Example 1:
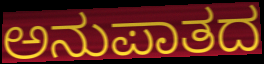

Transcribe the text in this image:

ಅನುಪಾತದ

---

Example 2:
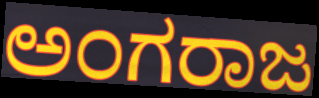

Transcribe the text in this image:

ಅಂಗರಾಜ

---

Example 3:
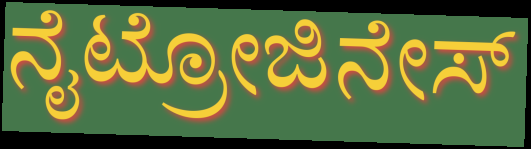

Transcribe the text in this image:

ನೈಟ್ರೋಜಿನೇಸ್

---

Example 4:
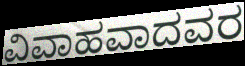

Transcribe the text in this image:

ವಿವಾಹವಾದವರ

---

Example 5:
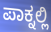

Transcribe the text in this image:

ಪಾಕ್ನಲ್ಲಿ